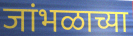
जांभळाच्या